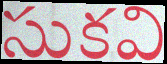
సుకవి